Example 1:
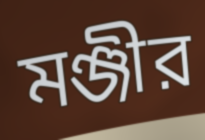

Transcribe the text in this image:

মঞ্জীর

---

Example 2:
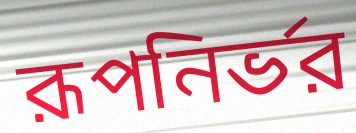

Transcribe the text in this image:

রূপনির্ভর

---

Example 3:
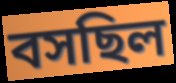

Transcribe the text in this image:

বসছিল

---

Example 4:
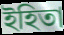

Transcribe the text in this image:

ইহিতা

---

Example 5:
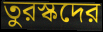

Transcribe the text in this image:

তুরস্কদের